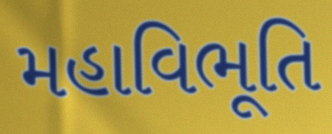
મહાવિભૂતિ